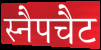
स्नैपचैट